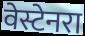
वेस्टेनरा